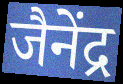
जैनेंद्र